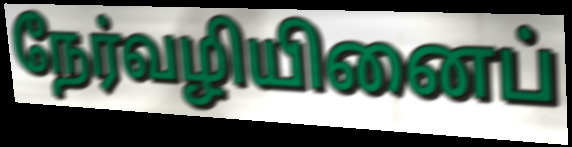
நேர்வழியினைப்